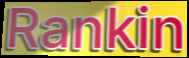
Rankin